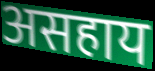
असहाय